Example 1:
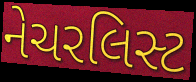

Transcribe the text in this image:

નેચરલિસ્ટ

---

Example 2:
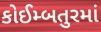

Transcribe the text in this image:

કોઈમ્બતુરમાં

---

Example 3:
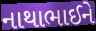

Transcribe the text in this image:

નાથાભાઈને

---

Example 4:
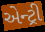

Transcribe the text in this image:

એન્‍ટ્રી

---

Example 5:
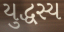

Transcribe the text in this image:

યુદ્ધસ્ય